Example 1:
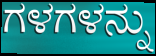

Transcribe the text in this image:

ಗಳಗಳನ್ನು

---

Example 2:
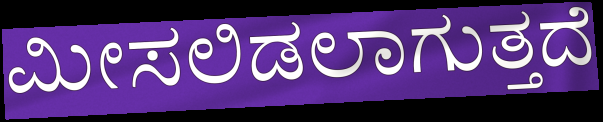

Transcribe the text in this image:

ಮೀಸಲಿಡಲಾಗುತ್ತದೆ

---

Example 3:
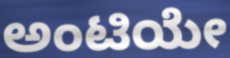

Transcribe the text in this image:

ಅಂಟಿಯೇ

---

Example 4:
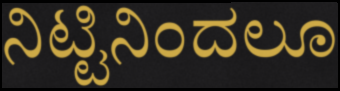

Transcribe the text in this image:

ನಿಟ್ಟಿನಿಂದಲೂ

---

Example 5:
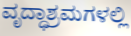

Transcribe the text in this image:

ವೃದ್ಧಾಶ್ರಮಗಳಲ್ಲಿ